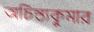
অচিন্ত্যকুমার